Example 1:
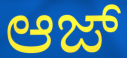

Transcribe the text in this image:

ಆಜ್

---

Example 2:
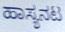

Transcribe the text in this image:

ಹಾಸ್ಯನಟ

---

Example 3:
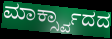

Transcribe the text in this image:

ಮಾರ್ಕ್ಸ್ವಾದದ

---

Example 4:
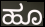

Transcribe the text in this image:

ಹೂ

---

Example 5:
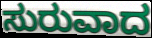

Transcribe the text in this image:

ಸುರುವಾದ